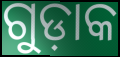
ଗୁଡ଼ାକ